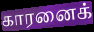
காரனைக்